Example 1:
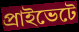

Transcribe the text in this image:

প্রাইভেটে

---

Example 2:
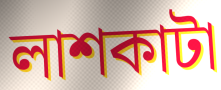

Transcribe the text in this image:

লাশকাটা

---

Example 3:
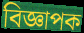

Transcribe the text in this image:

বিজ্ঞাপক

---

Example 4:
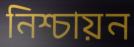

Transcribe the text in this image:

নিশ্চায়ন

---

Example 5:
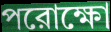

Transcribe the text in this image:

পরোক্ষো